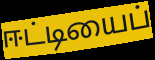
ஈட்டியைப்